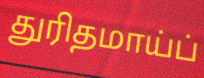
துரிதமாய்ப்